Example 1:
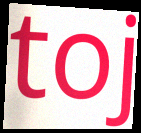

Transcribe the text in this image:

toj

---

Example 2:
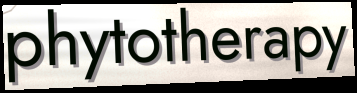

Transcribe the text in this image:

phytotherapy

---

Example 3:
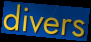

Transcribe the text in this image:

divers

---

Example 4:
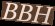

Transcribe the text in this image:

BBH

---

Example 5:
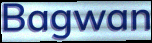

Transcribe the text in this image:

Bagwan